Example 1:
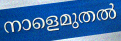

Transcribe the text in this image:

നാളെമുതൽ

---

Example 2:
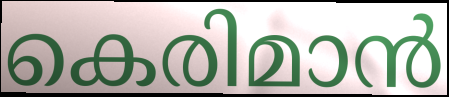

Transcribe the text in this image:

കെരിമാൻ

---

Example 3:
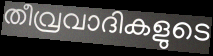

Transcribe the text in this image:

തീവ്രവാദികളുടെ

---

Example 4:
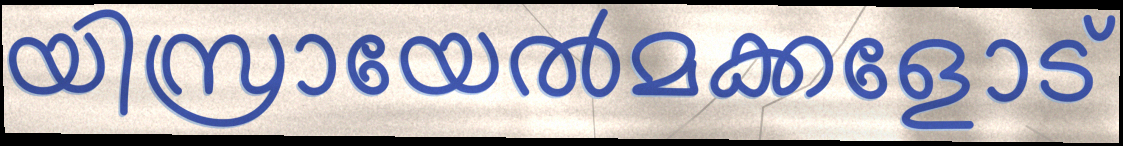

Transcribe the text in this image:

യിസ്രായേൽമക്കളോട്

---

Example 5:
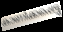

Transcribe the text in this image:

കാണിക്കപ്പെട്ടു